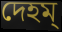
দেহম্